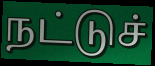
நட்டுச்